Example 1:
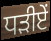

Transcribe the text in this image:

ਧੜੀਏਂ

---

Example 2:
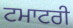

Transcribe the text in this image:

ਟਮਾਟਰੀ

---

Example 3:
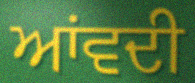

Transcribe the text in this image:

ਆਂਵਦੀ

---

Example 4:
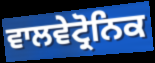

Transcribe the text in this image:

ਵਾਲਵੇਟ੍ਰੋਨਿਕ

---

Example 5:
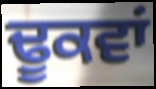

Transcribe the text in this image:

ਢੂਕਵਾਂ